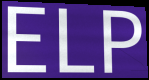
ELP